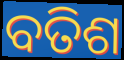
ବତିଶ